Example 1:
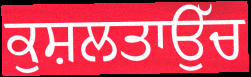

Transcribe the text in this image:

ਕੁਸ਼ਲਤਾਉੱਚ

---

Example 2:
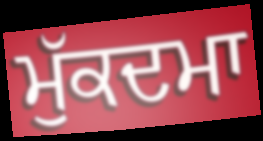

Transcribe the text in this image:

ਮੁੱਕਦਮਾ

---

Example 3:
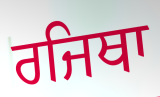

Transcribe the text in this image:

ਰਜਿਥਾ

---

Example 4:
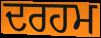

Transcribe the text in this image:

ਦਰਹਮ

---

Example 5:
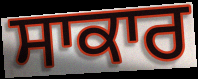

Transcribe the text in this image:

ਸਾਕਾਰ